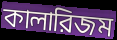
কালারিজম